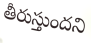
తీరుస్తుందని